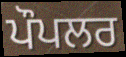
ਪੌਪਲਰ